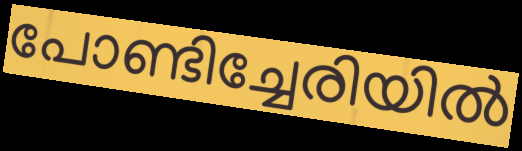
പോണ്ടിച്ചേരിയിൽ